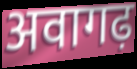
अवागढ़